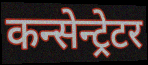
कन्सेन्ट्रेटर